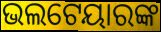
ଭଲଟେୟାରଙ୍କ